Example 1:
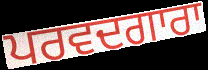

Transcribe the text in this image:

ਪਰਵਦਗਾਰਾ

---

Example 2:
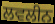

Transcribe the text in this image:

ਲਵਲੀਨ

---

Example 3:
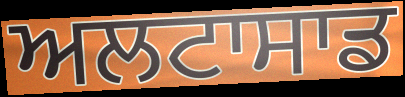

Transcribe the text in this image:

ਅਲਟਾਸਾਡ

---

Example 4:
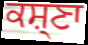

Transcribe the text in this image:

ਕਸ਼੍ਣਾ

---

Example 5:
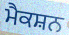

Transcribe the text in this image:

ਮੈਕਸ਼ਨ